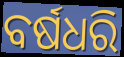
ବର୍ଷଧରି